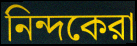
নিন্দকেরা